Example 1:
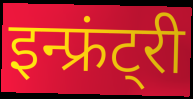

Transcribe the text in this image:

इन्फ्रंट्री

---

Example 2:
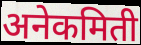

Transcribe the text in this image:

अनेकमिती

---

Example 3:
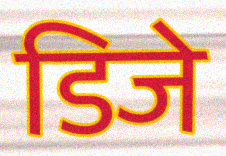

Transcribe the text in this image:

डिजे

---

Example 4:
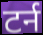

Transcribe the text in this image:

टर्न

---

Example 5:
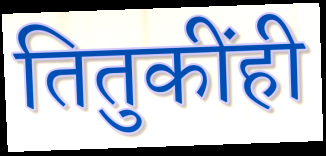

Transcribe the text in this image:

तितुकींही